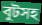
বুটসহ